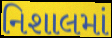
નિશાલમાં